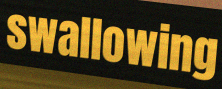
swallowing